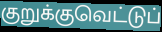
குறுக்குவெட்டுப்